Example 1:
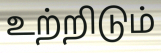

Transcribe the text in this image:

உற்றிடும்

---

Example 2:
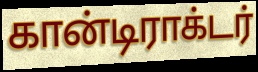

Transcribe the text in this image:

கான்டிராக்டர்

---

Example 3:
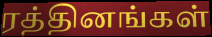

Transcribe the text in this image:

ரத்தினங்கள்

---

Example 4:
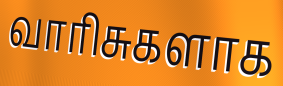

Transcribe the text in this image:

வாரிசுகளாக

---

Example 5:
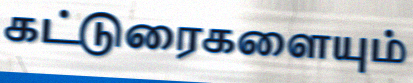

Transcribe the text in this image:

கட்டுரைகளையும்